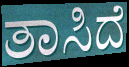
ತಾಸಿದೆ